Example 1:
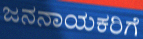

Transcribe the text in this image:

ಜನನಾಯಕರಿಗೆ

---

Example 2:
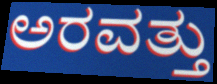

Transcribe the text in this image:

ಅರವತ್ತು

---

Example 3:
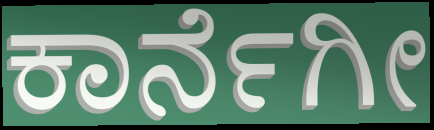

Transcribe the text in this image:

ಕಾರ್ನೆಗೀ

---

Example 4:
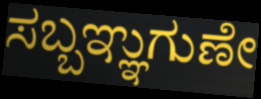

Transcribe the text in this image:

ಸಬ್ಬಞ್ಞುಗುಣೇ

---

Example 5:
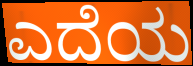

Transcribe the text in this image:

ಎದೆಯ